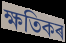
ক্ষতিকৰ